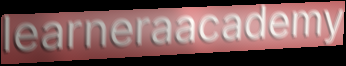
learneraacademy